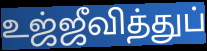
உஜ்ஜீவித்துப்